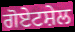
ਗੋਏਟਸ਼ੇਲ